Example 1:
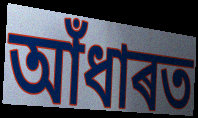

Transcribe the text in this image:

আঁধাৰত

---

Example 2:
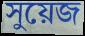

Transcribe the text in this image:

সুয়েজ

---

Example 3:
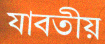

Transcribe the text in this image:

যাবতীয়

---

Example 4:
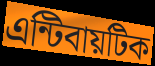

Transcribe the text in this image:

এন্টিবায়টিক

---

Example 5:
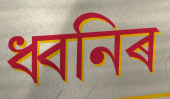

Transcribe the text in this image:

ধ্বনিৰ